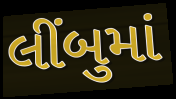
લીંબુમાં